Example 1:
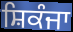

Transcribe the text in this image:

ਸ਼ਿਕੰਜਾ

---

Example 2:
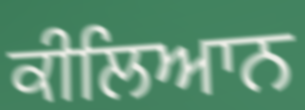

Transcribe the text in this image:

ਕੀਲਿਆਨ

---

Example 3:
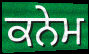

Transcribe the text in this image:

ਕਨੇਮ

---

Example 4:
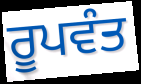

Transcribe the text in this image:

ਰੂਪਵੰਤ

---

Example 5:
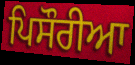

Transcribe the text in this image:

ਪਿਸੌਰੀਆ